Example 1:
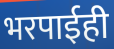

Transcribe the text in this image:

भरपाईही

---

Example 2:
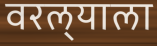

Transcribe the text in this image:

वरल्याला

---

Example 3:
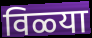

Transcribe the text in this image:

विळ्या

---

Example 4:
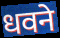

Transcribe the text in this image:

धवने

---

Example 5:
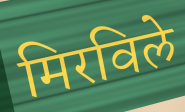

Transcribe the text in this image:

मिरविले